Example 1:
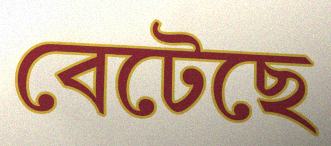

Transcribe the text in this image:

বেটেছে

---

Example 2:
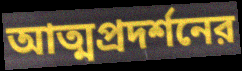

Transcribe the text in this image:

আত্মপ্রদর্শনের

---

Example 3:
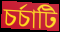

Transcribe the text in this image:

চর্চাটি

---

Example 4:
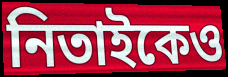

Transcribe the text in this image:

নিতাইকেও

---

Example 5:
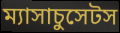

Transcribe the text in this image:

ম্যাসাচুসেটস